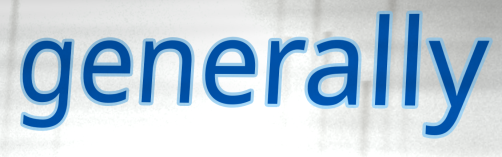
generally